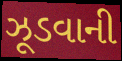
ઝૂડવાની